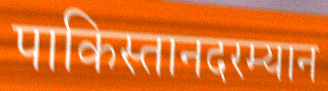
पाकिस्तानदरम्यान